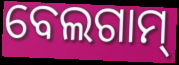
ବେଲଗାମ୍